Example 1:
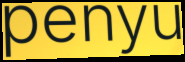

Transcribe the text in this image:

penyu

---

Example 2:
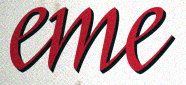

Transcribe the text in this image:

eme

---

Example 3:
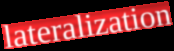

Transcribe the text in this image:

lateralization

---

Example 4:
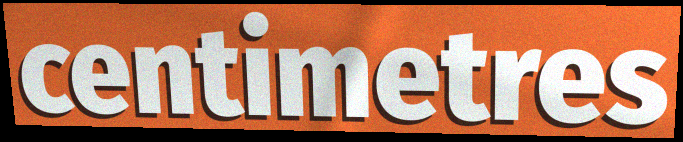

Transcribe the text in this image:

centimetres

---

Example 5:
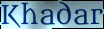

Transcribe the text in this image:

Khadar